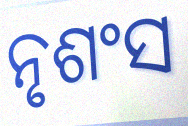
ନୃଶଂସ